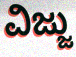
ವಿಜ್ಜು